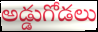
అడ్డుగోడలు